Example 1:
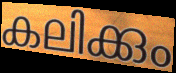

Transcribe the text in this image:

കലിക്കും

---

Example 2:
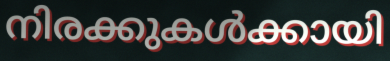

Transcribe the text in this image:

നിരക്കുകൾക്കായി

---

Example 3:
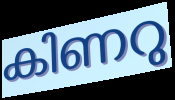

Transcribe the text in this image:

കിണറു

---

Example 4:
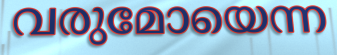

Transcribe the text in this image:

വരുമോയെന്ന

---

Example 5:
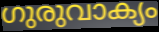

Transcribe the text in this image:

ഗുരുവാക്യം